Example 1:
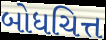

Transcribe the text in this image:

બોધચિત્ત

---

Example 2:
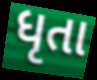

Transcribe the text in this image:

ધૃતા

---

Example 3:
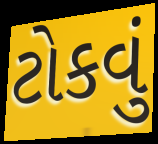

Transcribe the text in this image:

ટોકવું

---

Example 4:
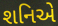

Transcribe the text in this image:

શનિએ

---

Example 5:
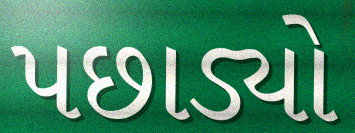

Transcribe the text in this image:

પછાડ્યો